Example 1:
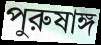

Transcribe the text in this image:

পুরুষাঙ্গ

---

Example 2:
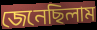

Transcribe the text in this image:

জেনেছিলাম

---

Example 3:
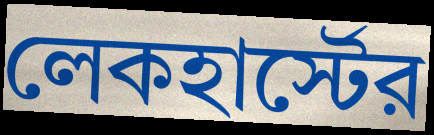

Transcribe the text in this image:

লেকহার্স্টের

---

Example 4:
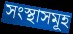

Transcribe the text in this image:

সংস্থাসমূহ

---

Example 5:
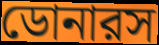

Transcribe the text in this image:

ডোনারস